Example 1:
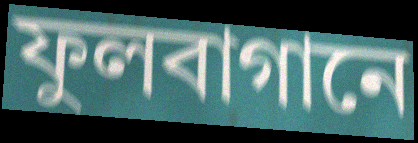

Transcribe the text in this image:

ফুলবাগানে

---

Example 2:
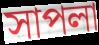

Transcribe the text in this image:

সাপলা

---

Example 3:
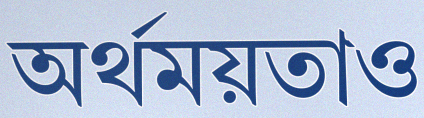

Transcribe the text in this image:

অর্থময়তাও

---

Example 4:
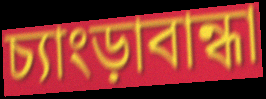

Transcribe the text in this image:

চ্যাংড়াবান্ধা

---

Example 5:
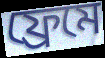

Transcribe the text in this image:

ফ্রেমে